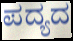
ಪದ್ಯದ